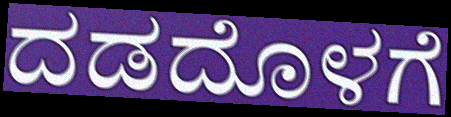
ದಡದೊಳಗೆ